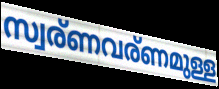
സ്വര്ണവര്ണമുള്ള